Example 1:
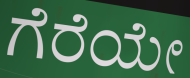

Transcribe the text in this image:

ಗೆರೆಯೇ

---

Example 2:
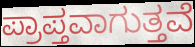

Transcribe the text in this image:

ಪ್ರಾಪ್ತವಾಗುತ್ತವೆ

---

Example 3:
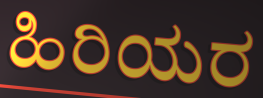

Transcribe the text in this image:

ಹಿರಿಯರ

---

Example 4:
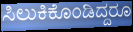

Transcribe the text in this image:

ಸಿಲುಕಿಕೊಂಡಿದ್ದರೂ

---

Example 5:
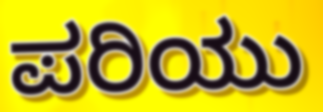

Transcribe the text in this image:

ಪರಿಯು